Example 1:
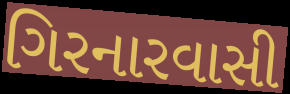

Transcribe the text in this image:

ગિરનારવાસી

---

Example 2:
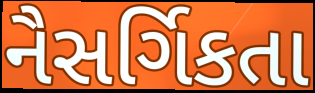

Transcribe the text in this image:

નૈસર્ગિકતા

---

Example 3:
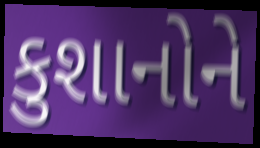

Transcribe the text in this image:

કુશાનોને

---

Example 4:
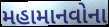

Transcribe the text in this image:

મહામાનવોના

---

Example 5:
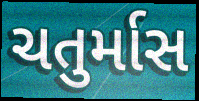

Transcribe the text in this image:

ચતુર્માસ